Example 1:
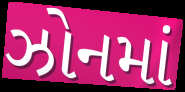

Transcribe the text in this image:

ઝોનમાં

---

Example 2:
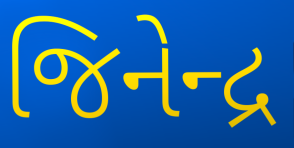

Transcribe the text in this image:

જિનેન્દ્ર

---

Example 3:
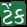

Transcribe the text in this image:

ટેંક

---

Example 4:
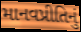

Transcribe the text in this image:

માનવપ્રીતિનું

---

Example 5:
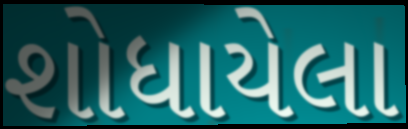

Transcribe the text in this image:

શોધાયેલા